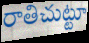
రాతిచుట్టూ